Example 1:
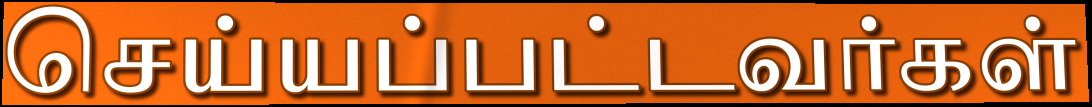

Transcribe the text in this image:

செய்யப்பட்டவர்கள்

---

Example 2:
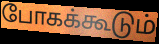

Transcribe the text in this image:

போகக்கூடும்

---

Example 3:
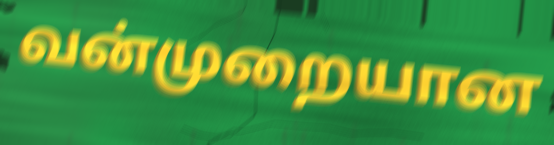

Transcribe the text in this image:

வன்முறையான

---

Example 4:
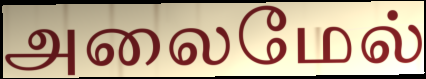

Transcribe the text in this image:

அலைமேல்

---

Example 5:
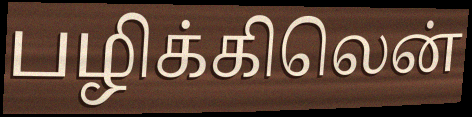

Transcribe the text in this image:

பழிக்கிலென்